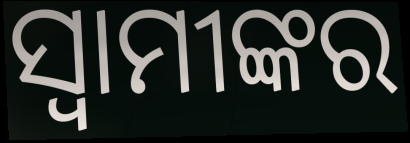
ସ୍ୱାମୀଙ୍କର